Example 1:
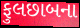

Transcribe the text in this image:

ફુલછાબના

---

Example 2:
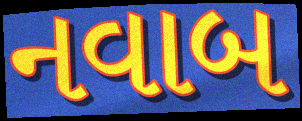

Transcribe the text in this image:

નવાબ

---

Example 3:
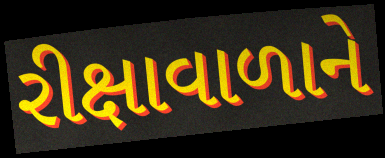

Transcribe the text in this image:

રીક્ષાવાળાને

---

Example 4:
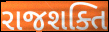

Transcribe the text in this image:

રાજશક્તિ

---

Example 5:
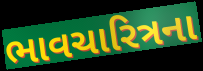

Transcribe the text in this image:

ભાવચારિત્રના